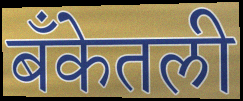
बँकेतली